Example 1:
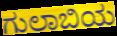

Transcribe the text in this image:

ಗುಲಾಬಿಯ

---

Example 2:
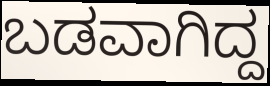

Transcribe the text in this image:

ಬಡವಾಗಿದ್ದ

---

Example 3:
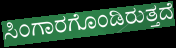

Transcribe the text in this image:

ಸಿಂಗಾರಗೊಂಡಿರುತ್ತದೆ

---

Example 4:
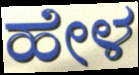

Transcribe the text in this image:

ಹೇಳ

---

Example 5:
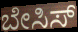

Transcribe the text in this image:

ಬೇಸಿಸ್